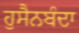
ਹੁਸੈਨਬੰਦਾ